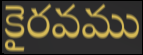
కైరవము